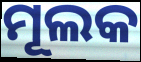
ମୂଲକ